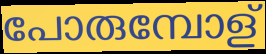
പോരുമ്പോള്